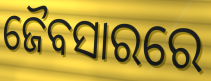
ଜୈବସାରରେ